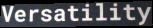
Versatility